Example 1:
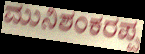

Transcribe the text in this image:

ಮುನಿಶಂಕರಪ್ಪ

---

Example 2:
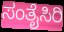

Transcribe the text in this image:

ಸಂತೈಸಿರಿ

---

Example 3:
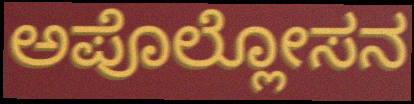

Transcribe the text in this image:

ಅಪೊಲ್ಲೋಸನ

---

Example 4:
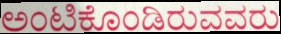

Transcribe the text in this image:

ಅಂಟಿಕೊಂಡಿರುವವರು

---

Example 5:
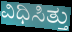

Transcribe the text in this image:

ವಿಧಿಸಿತ್ತು